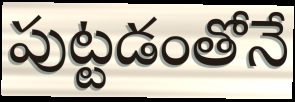
పుట్టడంతోనే